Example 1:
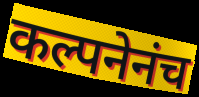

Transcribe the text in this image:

कल्पनेनंच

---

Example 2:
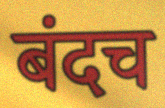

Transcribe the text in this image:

बंदच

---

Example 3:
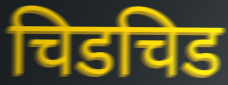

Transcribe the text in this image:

चिडचिड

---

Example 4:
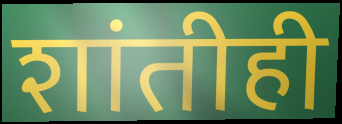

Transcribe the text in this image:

शांतीही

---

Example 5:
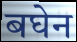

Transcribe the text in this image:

बघेन